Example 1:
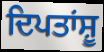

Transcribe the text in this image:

ਦਿਪਤਾਂਸ਼ੂ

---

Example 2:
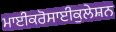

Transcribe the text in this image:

ਮਾਈਕਰੋਸਾਈਕੁਲੇਸ਼ਨ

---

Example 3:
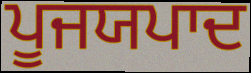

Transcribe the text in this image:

ਪੂਜਯਪਾਦ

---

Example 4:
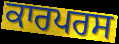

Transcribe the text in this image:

ਕਾਰਪਰਸ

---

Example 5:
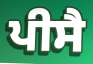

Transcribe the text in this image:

ਪੀਸੈ